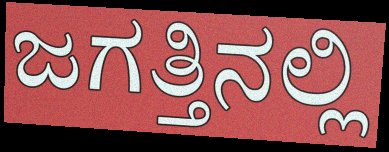
ಜಗತ್ತಿನಲ್ಲಿ